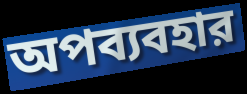
অপব্যবহার